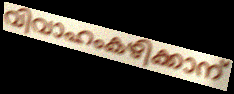
വിവാഹംകഴിക്കാന്